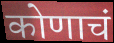
कोणाचं